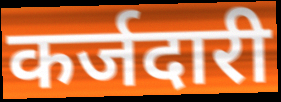
कर्जदारी